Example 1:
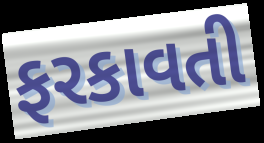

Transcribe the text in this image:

ફરકાવતી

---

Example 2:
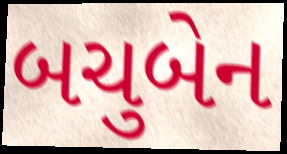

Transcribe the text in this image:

બચુબેન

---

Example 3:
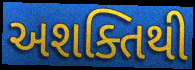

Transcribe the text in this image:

અશક્તિથી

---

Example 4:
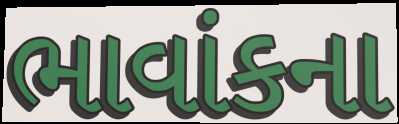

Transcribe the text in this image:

ભાવાંકના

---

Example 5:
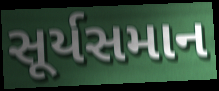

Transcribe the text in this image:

સૂર્યસમાન